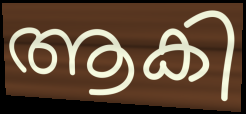
ആകി